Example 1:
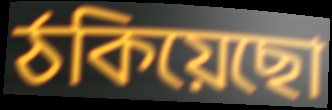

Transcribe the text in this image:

ঠকিয়েছো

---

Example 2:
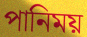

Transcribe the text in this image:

পানিময়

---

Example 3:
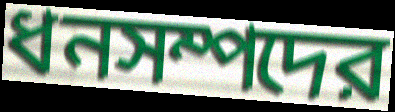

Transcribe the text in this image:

ধনসম্পদের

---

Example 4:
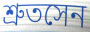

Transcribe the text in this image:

শ্রুতসেন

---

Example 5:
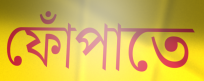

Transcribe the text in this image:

ফোঁপাতে